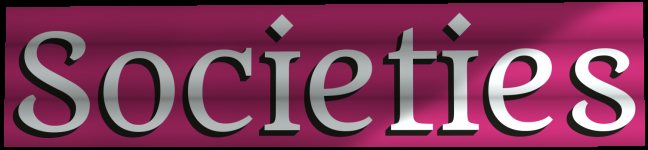
Societies